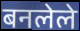
बनलेले